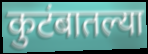
कुटंबातल्या